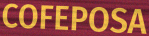
COFEPOSA